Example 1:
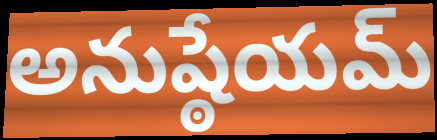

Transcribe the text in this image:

అనుష్ఠేయమ్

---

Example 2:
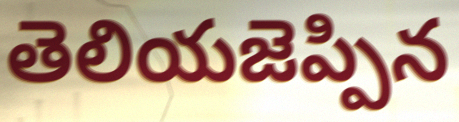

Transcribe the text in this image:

తెలియజెప్పిన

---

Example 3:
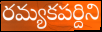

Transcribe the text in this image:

రమ్యకపర్దిని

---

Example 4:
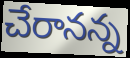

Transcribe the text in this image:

చేరానన్న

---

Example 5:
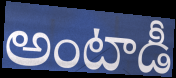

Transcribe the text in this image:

అంటాడీ